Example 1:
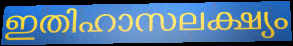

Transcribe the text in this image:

ഇതിഹാസലക്ഷ്യം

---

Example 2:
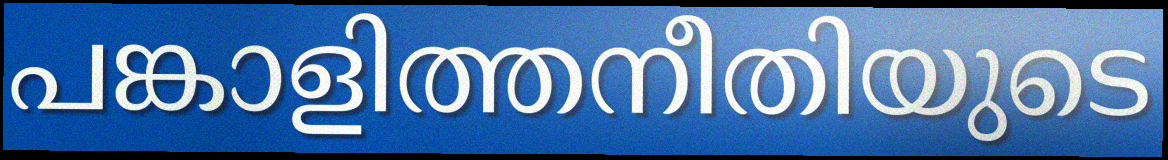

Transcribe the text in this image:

പങ്കാളിത്തനീതിയുടെ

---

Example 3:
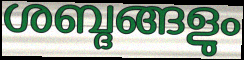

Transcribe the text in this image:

ശബ്ദങ്ങളും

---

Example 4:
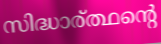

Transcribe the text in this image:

സിദ്ധാര്ത്ഥന്റെ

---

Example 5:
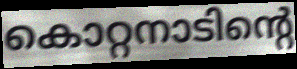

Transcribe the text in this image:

കൊറ്റനാടിന്റെ